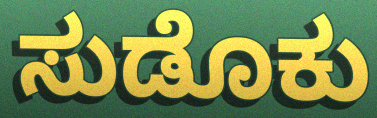
ಸುಡೊಕು